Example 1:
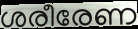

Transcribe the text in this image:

ശരീരേണ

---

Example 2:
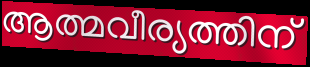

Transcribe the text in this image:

ആത്മവീര്യത്തിന്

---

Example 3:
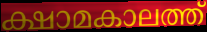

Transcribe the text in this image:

ക്ഷാമകാലത്ത്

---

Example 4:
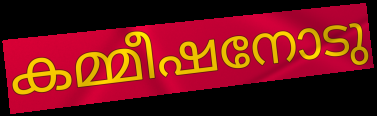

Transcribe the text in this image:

കമ്മീഷനോടു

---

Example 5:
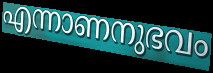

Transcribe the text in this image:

എന്നാണനുഭവം